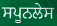
ਸਪੂਨਲੇਸ